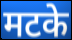
मटके